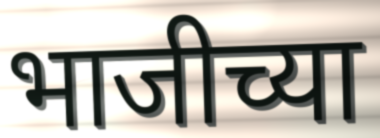
भाजीच्या